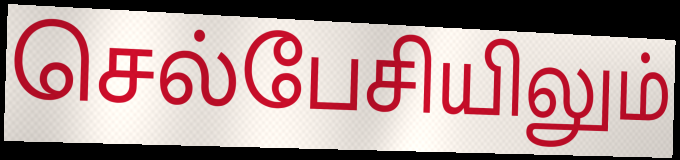
செல்பேசியிலும்